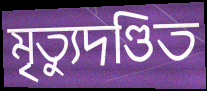
মৃত্যুদণ্ডিত